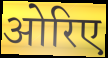
ओरिए